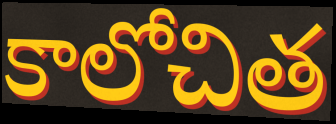
కాలోచిత